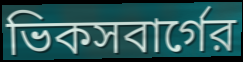
ভিকসবার্গের